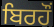
ਬਿਰਹੌਂ